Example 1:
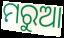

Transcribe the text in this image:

ମରୁଆ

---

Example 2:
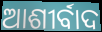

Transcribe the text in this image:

ଆଶୀର୍ବାଦ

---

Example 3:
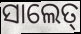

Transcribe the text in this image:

ସାଲେତ୍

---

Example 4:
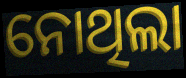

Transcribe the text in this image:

ନୋଥିଲା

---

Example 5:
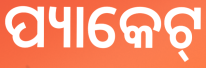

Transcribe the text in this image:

ପ୍ୟାକେଟ୍